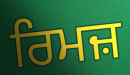
ਰਿਮਜ਼